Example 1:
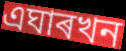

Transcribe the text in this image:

এঘাৰখন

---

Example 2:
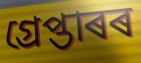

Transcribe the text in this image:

গ্ৰেপ্তাৰৰ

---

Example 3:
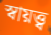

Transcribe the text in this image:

স্বায়ত্ত্ব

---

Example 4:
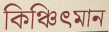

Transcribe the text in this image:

কিঞ্চিৎমান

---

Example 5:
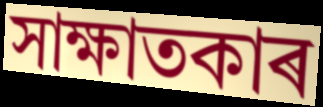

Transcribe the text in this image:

সাক্ষাতকাৰ